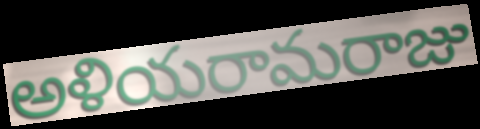
అళియరామరాజు